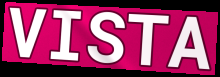
VISTA